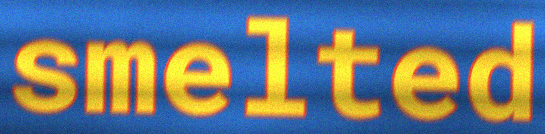
smelted